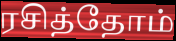
ரசித்தோம்